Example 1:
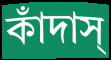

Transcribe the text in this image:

কাঁদাস্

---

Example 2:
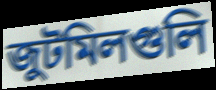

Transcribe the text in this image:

জুটমিলগুলি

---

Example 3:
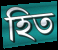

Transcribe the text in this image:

হিত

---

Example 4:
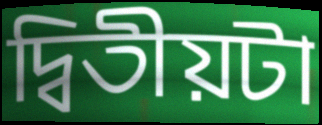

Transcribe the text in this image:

দ্বিতীয়টা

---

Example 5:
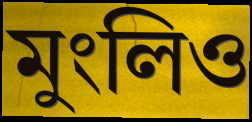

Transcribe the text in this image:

মুংলিও